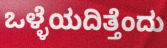
ಒಳ್ಳೆಯದಿತ್ತೆಂದು